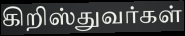
கிறிஸ்துவர்கள்